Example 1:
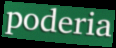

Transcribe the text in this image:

poderia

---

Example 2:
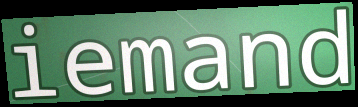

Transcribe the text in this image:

iemand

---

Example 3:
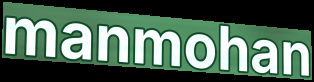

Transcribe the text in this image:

manmohan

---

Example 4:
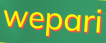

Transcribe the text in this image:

wepari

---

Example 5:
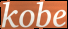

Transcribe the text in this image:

kobe